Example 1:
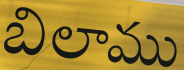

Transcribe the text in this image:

బిలాము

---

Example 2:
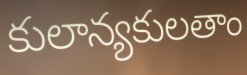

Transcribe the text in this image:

కులాన్యకులతాం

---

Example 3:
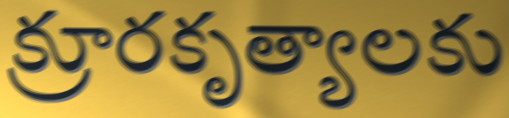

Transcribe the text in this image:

క్రూరకృత్యాలకు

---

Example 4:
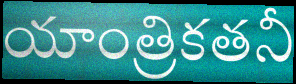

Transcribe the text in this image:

యాంత్రికతనీ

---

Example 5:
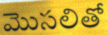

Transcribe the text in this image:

మొసలితో